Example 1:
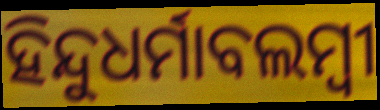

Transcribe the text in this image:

ହିନ୍ଦୁଧର୍ମାବଲମ୍ବୀ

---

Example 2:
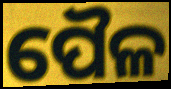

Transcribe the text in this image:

ପୈଳ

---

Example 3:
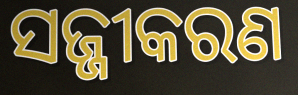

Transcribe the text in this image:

ସଜ୍ଜୀକରଣ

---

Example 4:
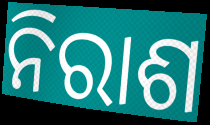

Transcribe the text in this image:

ନିରାଶ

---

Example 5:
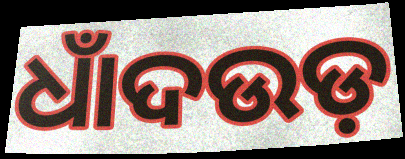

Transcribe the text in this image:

ଧାଁଦଉଡ଼